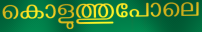
കൊളുത്തുപോലെ